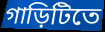
গাড়িটিতে